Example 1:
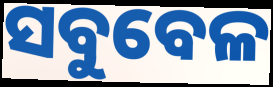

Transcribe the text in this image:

ସବୁବେଳ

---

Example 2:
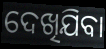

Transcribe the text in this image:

ଦେଖିଯିବା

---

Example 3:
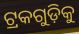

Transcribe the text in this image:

ଟ୍ରକଗୁଡ଼ିକୁ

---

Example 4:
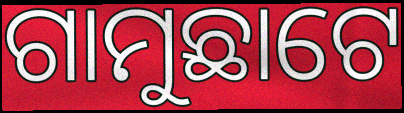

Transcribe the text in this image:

ଗାମୁଛାଟେ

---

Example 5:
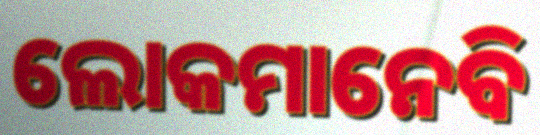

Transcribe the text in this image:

ଲୋକମାନେବି